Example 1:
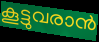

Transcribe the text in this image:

കൂട്ടുവരാൻ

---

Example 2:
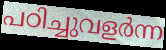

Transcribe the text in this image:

പഠിച്ചുവളർന്ന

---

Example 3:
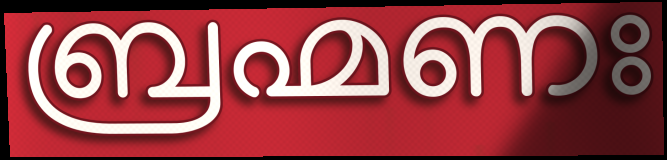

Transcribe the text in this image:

ബ്രഹ്മണഃ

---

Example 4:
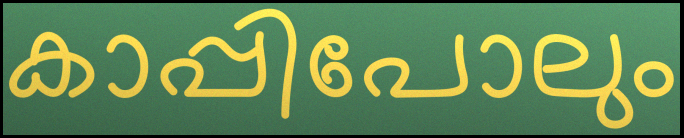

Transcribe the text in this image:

കാപ്പിപോലും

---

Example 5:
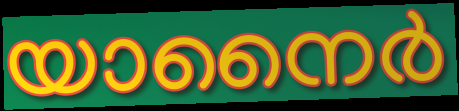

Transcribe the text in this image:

യാനൈർ